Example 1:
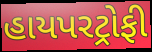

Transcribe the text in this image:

હાયપરટ્રોફી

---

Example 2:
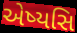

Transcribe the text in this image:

એષ્યસિ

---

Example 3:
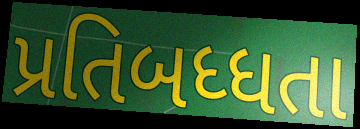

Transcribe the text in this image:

પ્રતિબધ્ધતા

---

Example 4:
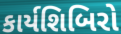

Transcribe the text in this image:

કાર્યશિબિરો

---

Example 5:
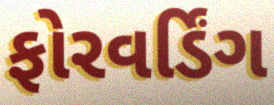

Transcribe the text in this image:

ફોરવર્ડિંગ